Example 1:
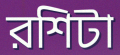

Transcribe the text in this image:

রশিটা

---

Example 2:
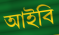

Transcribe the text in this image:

আইবি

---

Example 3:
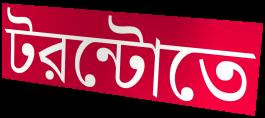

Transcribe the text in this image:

টরন্টোতে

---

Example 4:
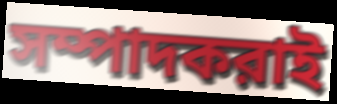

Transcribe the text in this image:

সম্পাদকরাই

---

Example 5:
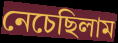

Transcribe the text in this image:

নেচেছিলাম